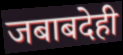
जबाबदेही